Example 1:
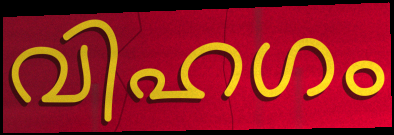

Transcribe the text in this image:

വിഹഗം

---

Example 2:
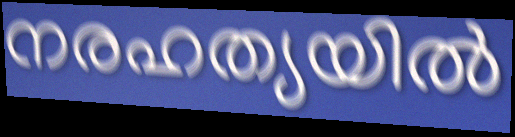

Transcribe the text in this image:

നരഹത്യയിൽ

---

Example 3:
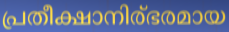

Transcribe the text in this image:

പ്രതീക്ഷാനിര്ഭരമായ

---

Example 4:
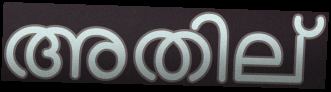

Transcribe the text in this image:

അതില്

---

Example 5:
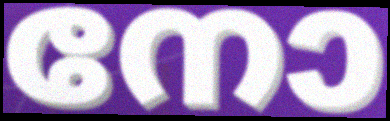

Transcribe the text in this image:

നോ